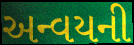
અન્વયની